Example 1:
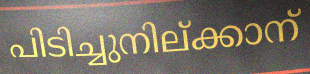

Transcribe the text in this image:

പിടിച്ചുനില്ക്കാന്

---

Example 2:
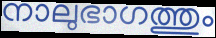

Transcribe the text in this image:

നാലുഭാഗത്തും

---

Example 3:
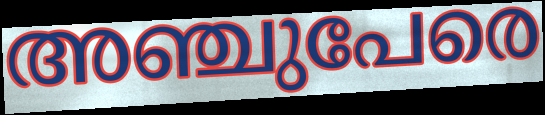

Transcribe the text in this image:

അഞ്ചുപേരെ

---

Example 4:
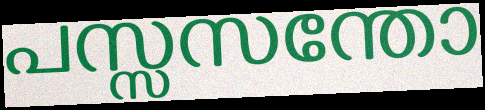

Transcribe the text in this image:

പസ്സസന്തോ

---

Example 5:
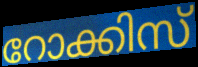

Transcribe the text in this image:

റോക്കിസ്